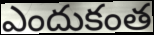
ఎందుకంత